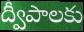
ద్వీపాలకు